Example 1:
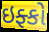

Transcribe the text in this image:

ઇફ્કો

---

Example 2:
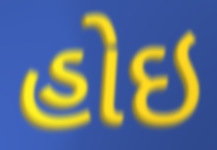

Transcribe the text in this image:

હોઇ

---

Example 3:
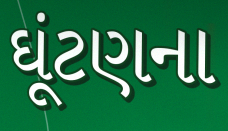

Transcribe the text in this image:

ઘૂંટણના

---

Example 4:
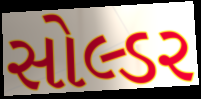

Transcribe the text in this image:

સોલ્ડર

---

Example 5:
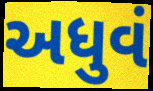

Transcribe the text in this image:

અધુવં